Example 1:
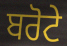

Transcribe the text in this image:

ਬਰੋਟੇ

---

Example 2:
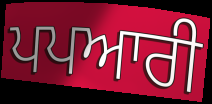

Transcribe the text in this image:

ਪਪਆਰੀ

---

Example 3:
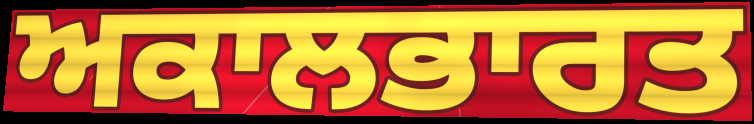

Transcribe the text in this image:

ਅਕਾਲਭਾਰਤ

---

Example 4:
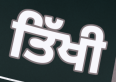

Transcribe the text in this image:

ਤਿੱਖੀ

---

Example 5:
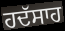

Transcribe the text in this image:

ਹਦੱਸਾਹ